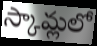
స్కామ్లలో